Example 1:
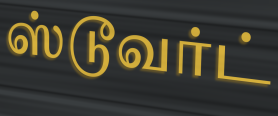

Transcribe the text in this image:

ஸ்டூவர்ட்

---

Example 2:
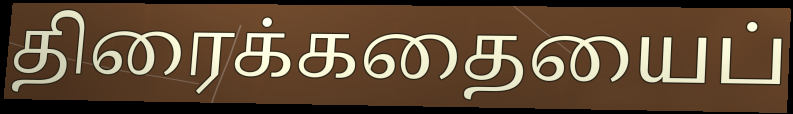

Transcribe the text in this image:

திரைக்கதையைப்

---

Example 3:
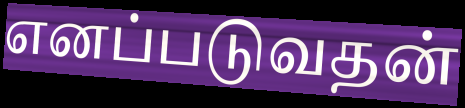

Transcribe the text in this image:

எனப்படுவதன்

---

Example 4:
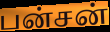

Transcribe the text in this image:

பன்சன்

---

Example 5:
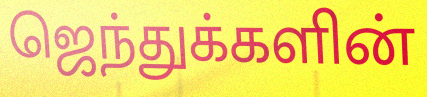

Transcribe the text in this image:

ஜெந்துக்களின்